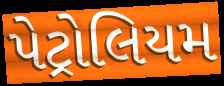
પેટ્રોલિયમ